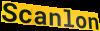
Scanlon